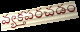
వ్యక్తపరచడం